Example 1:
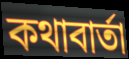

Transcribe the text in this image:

কথাবাৰ্তা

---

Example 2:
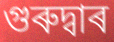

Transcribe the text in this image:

গুৰুদ্বাৰ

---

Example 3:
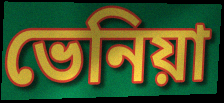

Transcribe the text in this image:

ভেনিয়া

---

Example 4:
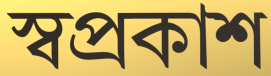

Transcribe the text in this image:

স্বপ্ৰকাশ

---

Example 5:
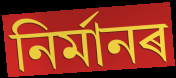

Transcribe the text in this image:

নিৰ্মানৰ